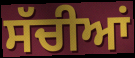
ਸੱਚੀਆਂ